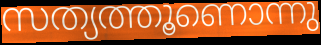
സത്യത്തൂണൊന്നു